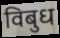
विबुध